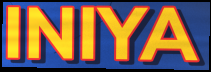
INIYA